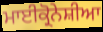
ਮਾਈਕ੍ਰੋਨੇਸ਼ੀਆ